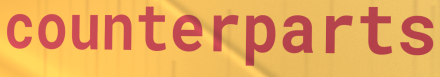
counterparts